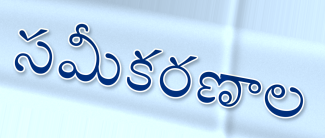
సమీకరణాల